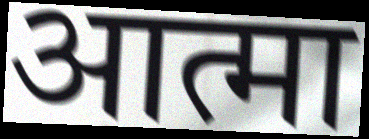
आत्मा